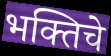
भक्तिचे